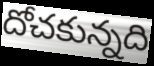
దోచకున్నది